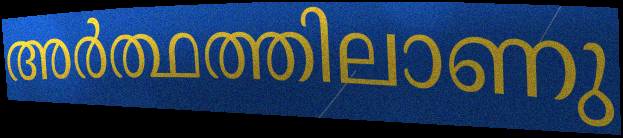
അർത്ഥത്തിലാണു